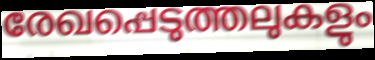
രേഖപ്പെടുത്തലുകളും